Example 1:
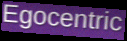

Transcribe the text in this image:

Egocentric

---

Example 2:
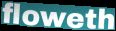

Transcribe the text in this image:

floweth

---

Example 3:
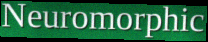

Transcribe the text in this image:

Neuromorphic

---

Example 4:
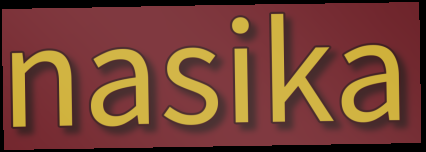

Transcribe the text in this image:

nasika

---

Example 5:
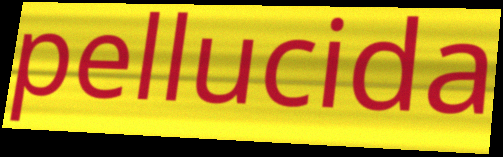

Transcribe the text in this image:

pellucida